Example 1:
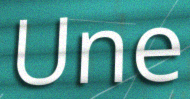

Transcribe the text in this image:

Une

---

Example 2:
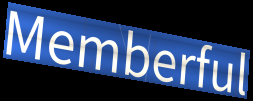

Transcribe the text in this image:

Memberful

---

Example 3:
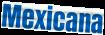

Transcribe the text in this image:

Mexicana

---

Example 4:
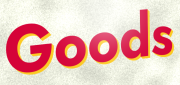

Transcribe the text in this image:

Goods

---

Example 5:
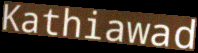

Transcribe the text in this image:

Kathiawad